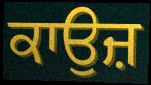
ਕਾਉਜ਼